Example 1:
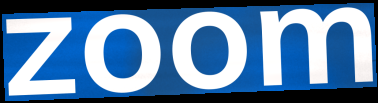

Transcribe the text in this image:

zoom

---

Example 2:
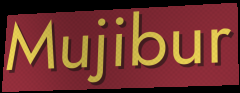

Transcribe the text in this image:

Mujibur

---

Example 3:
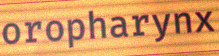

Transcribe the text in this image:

oropharynx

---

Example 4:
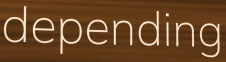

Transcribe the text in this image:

depending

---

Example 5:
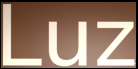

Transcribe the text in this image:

Luz